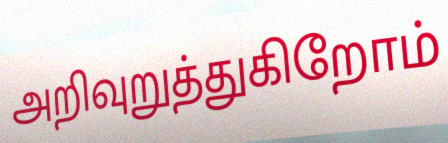
அறிவுறுத்துகிறோம்